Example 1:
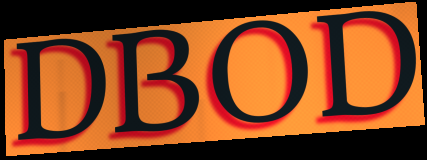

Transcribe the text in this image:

DBOD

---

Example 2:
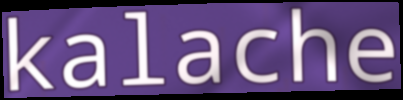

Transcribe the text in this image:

kalache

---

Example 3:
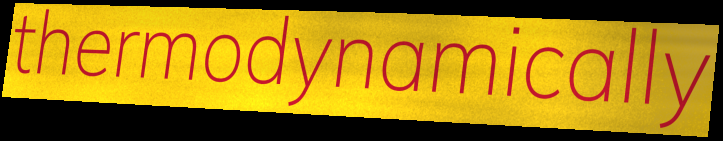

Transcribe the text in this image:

thermodynamically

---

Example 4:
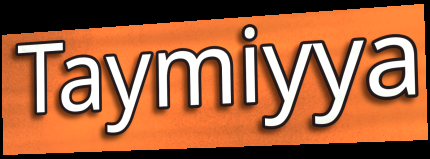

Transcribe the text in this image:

Taymiyya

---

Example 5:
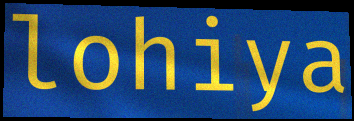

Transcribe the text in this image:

lohiya